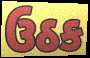
ઉઠક